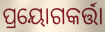
ପ୍ରୟୋଗକର୍ତ୍ତା